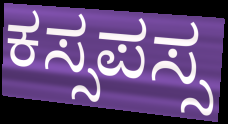
ಕಸ್ಸಪಸ್ಸ